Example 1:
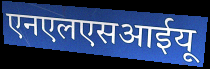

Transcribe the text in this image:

एनएलएसआईयू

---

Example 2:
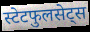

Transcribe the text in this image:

स्टेटफुलसेट्स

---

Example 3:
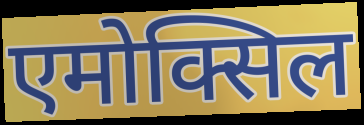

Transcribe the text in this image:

एमोक्सिल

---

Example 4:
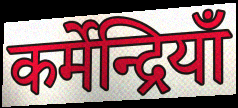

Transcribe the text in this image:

कर्मेन्द्रियाँ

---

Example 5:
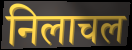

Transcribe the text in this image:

निलाचल